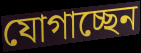
যোগাচ্ছেন